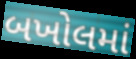
બખોલમાં